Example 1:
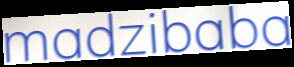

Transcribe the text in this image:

madzibaba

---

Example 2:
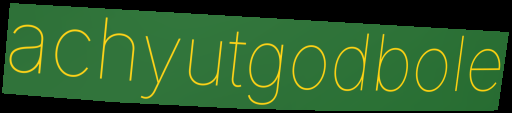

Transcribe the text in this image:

achyutgodbole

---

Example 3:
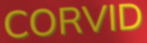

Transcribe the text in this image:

CORVID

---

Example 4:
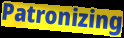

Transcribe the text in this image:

Patronizing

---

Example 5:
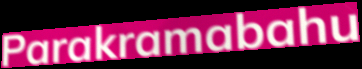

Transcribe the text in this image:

Parakramabahu